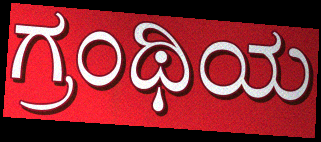
ಗ್ರಂಥಿಯ